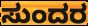
ಸುಂದರ